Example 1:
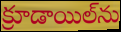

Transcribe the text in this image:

క్రూడాయిల్‌ను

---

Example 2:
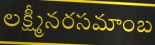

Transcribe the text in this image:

లక్ష్మీనరసమాంబ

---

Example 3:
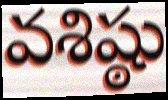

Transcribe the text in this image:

వశిష్ఠు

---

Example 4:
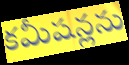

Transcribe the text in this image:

కమీషన్లను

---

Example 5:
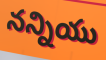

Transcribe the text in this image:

నన్నియు